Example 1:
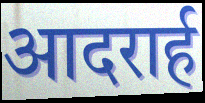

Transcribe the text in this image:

आदरार्ह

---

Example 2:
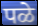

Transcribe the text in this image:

पळे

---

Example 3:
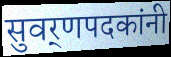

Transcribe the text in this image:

सुवर्णपदकांनी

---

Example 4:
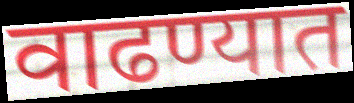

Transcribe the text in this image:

वाढण्यात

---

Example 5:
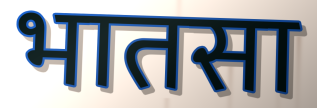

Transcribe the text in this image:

भातसा